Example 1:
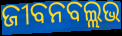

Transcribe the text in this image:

ଜୀବନବଲ୍ଲଭ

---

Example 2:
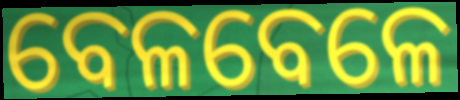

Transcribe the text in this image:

ବେଳବେଳେ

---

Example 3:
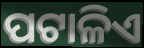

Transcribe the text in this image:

ପଟାଳିଏ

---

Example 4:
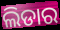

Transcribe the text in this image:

ଲିଡାର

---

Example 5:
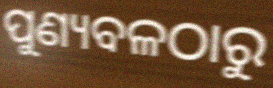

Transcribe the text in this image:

ପୁଣ୍ୟବଳଠାରୁ